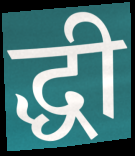
द्धी